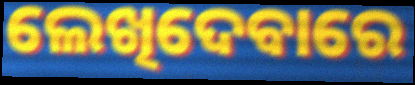
ଲେଖିଦେବାରେ